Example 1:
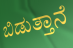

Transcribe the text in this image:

ಬಿಡುತ್ತಾನೆ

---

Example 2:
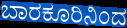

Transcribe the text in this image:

ಬಾರಕೂರಿನಿಂದ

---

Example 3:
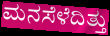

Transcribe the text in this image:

ಮನಸೆಳೆದಿತ್ತು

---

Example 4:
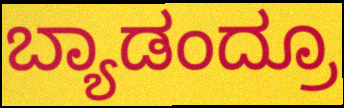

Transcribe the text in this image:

ಬ್ಯಾಡಂದ್ರೂ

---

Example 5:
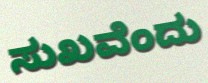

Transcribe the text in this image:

ಸುಖವೆಂದು